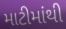
માટીમાંથી